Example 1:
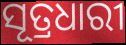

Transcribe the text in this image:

ସୂତ୍ରଧାରୀ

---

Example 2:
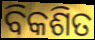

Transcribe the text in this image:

ବିକଶିତ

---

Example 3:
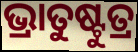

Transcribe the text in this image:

ଭ୍ରାତୁଷ୍ଟୁତ୍ର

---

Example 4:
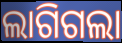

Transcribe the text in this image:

ଲାଗିଗଲା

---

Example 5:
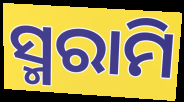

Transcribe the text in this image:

ସ୍ମରାମି